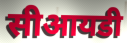
सीआयडी